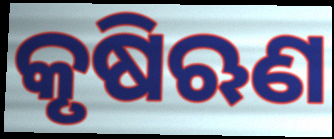
କୃଷିଋଣ